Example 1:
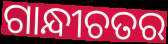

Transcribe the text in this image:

ଗାନ୍ଧୀଚତର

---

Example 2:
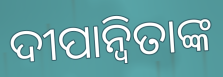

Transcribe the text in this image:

ଦୀପାନ୍ୱିତାଙ୍କ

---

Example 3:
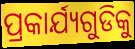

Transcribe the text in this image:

ପ୍ରକାର୍ଯ୍ୟଗୁଡିକୁ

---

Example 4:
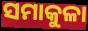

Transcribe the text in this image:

ସମାକୁଳା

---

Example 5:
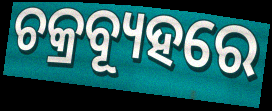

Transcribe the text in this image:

ଚକ୍ରବ୍ୟୂହରେ